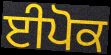
ਈਪੋਕ